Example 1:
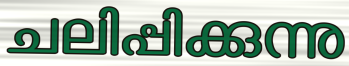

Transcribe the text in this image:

ചലിപ്പിക്കുന്നു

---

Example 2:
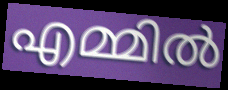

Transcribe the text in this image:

എമ്മിൽ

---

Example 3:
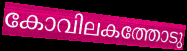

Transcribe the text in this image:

കോവിലകത്തോടു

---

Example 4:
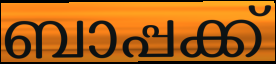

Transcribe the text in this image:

ബാപ്പക്ക്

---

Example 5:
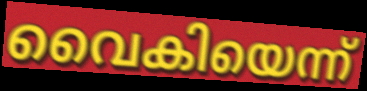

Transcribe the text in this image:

വൈകിയെന്ന്